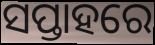
ସପ୍ତାହରେ